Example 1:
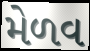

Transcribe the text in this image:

મેળવ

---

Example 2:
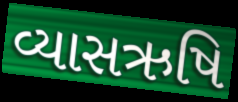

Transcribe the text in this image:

વ્યાસઋષિ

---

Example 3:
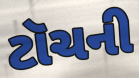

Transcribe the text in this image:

ટૉચની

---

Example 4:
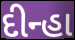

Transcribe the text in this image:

દીન્હા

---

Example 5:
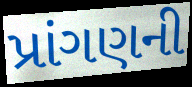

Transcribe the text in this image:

પ્રાંગણની